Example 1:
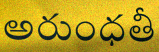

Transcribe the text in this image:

అరుంధతీ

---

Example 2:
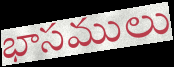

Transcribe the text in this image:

భాసములు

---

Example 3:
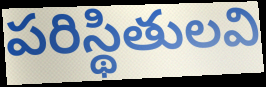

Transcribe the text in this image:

పరిస్థితులవి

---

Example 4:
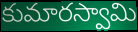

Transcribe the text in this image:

కుమారస్వామి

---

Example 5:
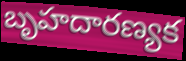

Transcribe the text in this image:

బృహదారణ్యక